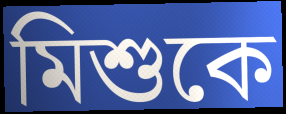
মিশুকে